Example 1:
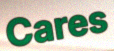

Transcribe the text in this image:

Cares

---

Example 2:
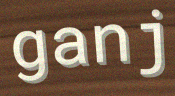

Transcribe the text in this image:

ganj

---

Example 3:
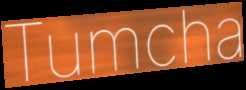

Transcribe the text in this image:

Tumcha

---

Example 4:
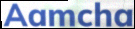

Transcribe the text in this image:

Aamcha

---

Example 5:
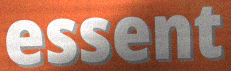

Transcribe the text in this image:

essent